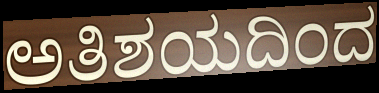
ಅತಿಶಯದಿಂದ